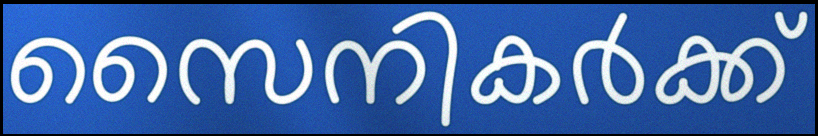
സൈനികർക്ക്